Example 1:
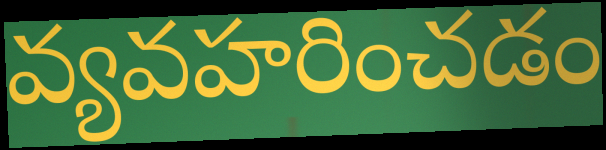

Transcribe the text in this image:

వ్యవహరించడం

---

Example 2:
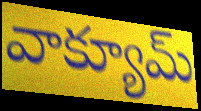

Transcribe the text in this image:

వాక్యూమ్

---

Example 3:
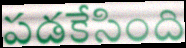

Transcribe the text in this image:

పడకేసింది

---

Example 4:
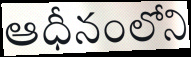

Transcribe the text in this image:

ఆధీనంలోని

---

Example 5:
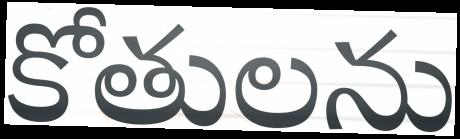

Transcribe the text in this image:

కోతులను